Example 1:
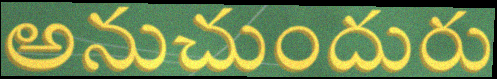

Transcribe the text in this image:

అనుచుందురు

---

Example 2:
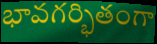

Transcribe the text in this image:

భావగర్భితంగా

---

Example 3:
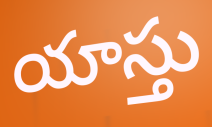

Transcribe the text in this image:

యాస్తు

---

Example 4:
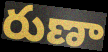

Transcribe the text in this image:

రుణా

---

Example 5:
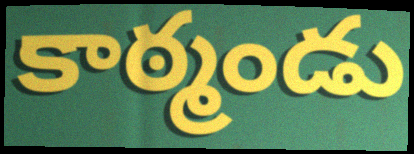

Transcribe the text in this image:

కాఠ్మండు